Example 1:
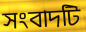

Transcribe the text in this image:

সংবাদটি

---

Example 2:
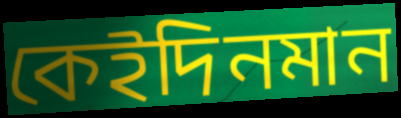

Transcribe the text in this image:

কেইদিনমান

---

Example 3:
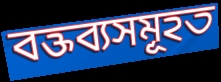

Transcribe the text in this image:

বক্তব্যসমূহত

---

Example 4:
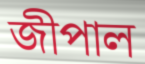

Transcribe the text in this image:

জীপাল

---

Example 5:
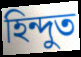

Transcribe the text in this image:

হিন্দুত